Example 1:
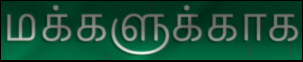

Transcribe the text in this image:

மக்களுக்காக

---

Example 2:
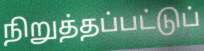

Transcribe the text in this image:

நிறுத்தப்பட்டுப்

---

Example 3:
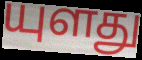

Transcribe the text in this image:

யுளது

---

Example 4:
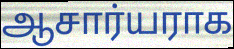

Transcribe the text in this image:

ஆசார்யராக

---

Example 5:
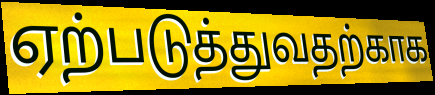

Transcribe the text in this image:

ஏற்படுத்துவதற்காக